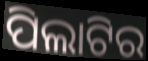
ପିଲାଟିର